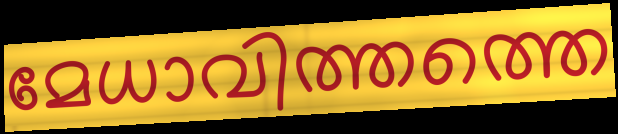
മേധാവിത്തത്തെ